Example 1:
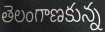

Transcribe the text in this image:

తెలంగాణకున్న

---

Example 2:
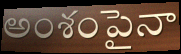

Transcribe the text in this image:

అంశంపైనా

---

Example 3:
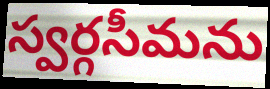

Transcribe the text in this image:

స్వర్గసీమను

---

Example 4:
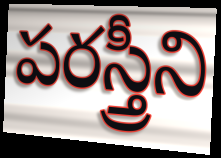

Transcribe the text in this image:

పరస్త్రీని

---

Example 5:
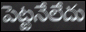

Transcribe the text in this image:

పెట్టనేలేదు